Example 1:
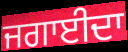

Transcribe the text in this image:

ਜਗਾਈਦਾ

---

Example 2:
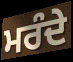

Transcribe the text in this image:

ਮਰੰਦੇ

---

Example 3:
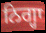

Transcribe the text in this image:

ਨਿਗ੍ਹਾ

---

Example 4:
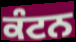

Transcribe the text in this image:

ਕੰਟਨ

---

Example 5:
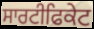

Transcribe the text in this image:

ਸਾਰਟੀਫਿਕੇਟ